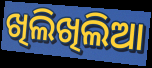
ଖିଲିଖିଲିଆ